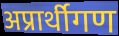
अप्रार्थीगण